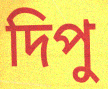
দিপু